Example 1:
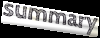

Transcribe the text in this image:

summary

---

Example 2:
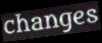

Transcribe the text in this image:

changes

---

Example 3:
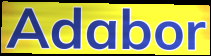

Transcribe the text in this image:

Adabor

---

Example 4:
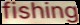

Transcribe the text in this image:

fishing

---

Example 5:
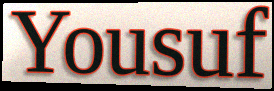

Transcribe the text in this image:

Yousuf